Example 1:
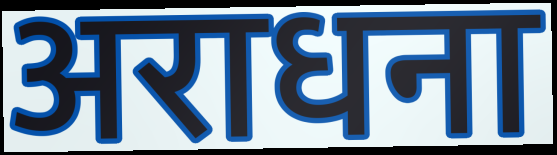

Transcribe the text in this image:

अराधना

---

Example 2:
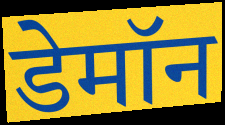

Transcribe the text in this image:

डेमॉन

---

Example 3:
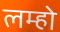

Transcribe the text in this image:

लम्हो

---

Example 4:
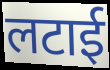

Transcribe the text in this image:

लटाई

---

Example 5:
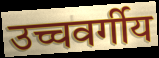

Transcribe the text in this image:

उच्चवर्गीय